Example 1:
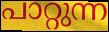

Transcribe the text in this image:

പാറ്റുന്ന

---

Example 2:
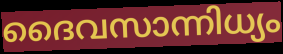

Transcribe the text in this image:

ദൈവസാന്നിധ്യം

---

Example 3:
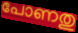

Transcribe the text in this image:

പോണതു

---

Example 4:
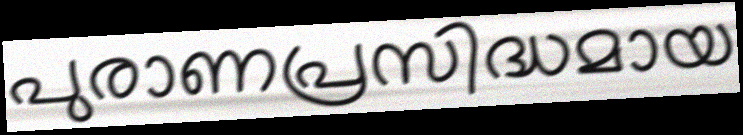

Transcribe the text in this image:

പുരാണപ്രസിദ്ധമായ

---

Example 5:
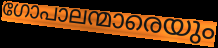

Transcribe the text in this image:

ഗോപാലന്മാരെയും